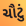
ચૌટું